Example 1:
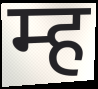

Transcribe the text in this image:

म्ह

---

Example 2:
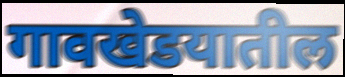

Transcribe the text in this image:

गावखेडयातील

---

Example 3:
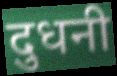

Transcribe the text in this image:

दुधनी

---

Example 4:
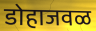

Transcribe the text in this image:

डोहाजवळ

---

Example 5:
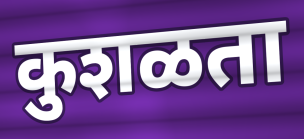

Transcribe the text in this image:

कुशळता